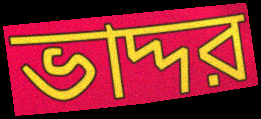
ভাদ্দর